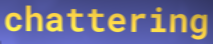
chattering